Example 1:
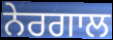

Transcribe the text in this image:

ਨੇਰਗਾਲ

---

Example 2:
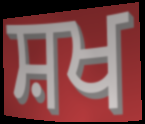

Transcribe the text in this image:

ਸ਼ਖ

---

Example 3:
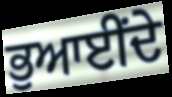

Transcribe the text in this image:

ਭੁਆਈਂਦੇ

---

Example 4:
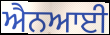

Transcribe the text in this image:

ਐਨਆਈ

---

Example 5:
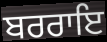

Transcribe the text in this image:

ਬਰਰਾਇ